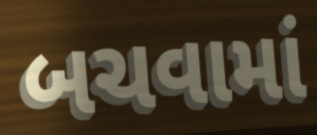
બચવામાં